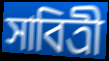
সাবিত্ৰী